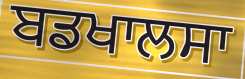
ਬਡਖਾਲਸਾ